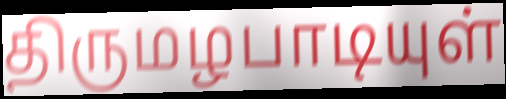
திருமழபாடியுள்